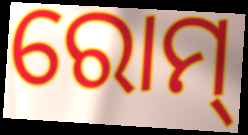
ରୋମ୍